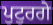
ਪੁਟੁਰਗੇ